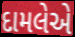
દામલેએ